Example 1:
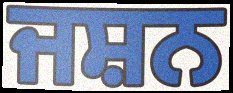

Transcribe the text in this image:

ਜਸ਼ਨ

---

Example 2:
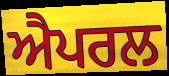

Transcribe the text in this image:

ਐਪਰਲ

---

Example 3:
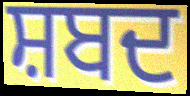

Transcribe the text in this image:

ਸ਼ਬਦ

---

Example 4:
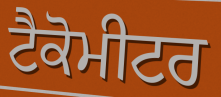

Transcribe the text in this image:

ਟੈਕੋਮੀਟਰ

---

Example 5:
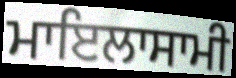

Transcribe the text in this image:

ਮਾਇਲਾਸਾਮੀ